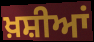
ਖ਼ਸ਼ੀਆਂ